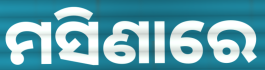
ମସିଣାରେ